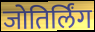
जोतिर्लिंग